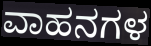
ವಾಹನಗಳ